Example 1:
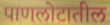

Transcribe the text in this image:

पाणलोटातील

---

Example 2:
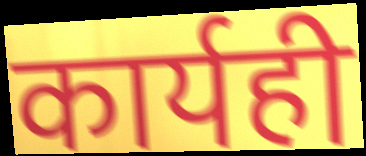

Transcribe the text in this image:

कार्यही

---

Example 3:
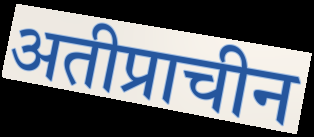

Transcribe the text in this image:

अतीप्राचीन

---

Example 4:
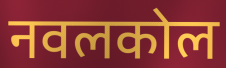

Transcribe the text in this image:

नवलकोल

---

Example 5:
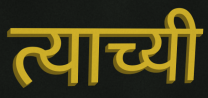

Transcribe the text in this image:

त्याच्यी